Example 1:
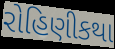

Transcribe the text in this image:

રોહિણીકથા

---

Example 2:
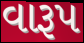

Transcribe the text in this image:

વારૂપ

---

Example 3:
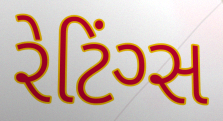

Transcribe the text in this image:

રેટિંગ્સ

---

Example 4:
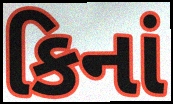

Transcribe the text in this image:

કિનાં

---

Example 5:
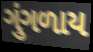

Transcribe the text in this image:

ગુંગળાય